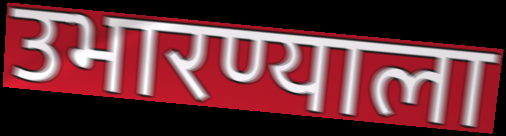
उभारण्याला